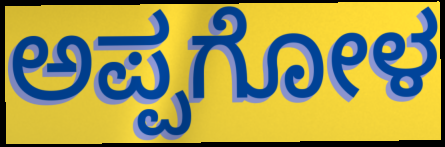
ಅಪ್ಪಗೋಳ